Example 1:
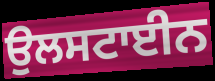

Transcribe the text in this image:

ਉਲਸਟਾਈਨ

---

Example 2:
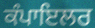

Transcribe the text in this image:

ਕੰਪਾਇਲਰ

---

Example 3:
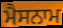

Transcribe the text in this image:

ਮੈਸਨਾਮ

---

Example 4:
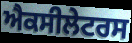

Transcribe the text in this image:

ਐਕਸੀਲੇਟਰਸ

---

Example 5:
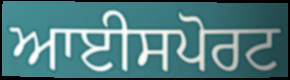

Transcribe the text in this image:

ਆਈਸਪੋਰਟ